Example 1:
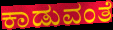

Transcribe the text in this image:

ಕಾಡುವಂತೆ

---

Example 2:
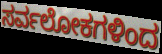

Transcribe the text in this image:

ಸರ್ವಲೋಕಗಳಿಂದ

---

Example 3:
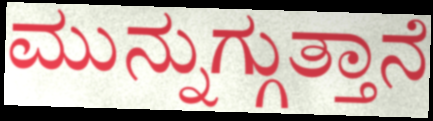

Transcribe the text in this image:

ಮುನ್ನುಗ್ಗುತ್ತಾನೆ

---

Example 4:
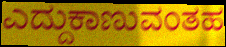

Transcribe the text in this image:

ಎದ್ದುಕಾಣುವಂತಹ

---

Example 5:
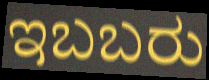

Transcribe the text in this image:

ಇಬಬರು